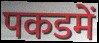
पकडमें